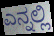
ಎನ್ನಲ್ಲಿ